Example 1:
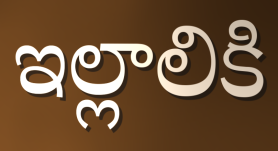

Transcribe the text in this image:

ఇల్లాలికి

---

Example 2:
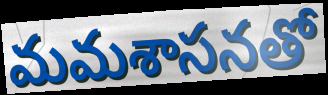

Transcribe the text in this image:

మమశాసనతో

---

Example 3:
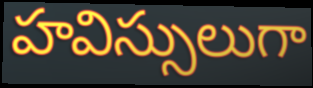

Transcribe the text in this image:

హవిస్సులుగా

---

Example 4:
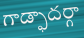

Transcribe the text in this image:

గాడ్ఫాదర్గా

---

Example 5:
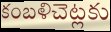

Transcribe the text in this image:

కంబళిచెట్లకు